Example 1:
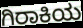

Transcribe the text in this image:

ಗಿರಾಕಿಯ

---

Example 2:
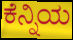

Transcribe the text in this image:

ಕೆನ್ನಿಯ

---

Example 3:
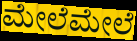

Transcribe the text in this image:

ಮೇಲೆಮೇಲೆ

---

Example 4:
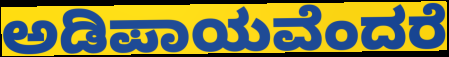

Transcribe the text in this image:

ಅಡಿಪಾಯವೆಂದರೆ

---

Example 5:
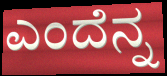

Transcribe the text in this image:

ಎಂದೆನ್ನ